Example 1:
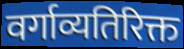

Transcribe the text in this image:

वर्गाव्यतिरिक्त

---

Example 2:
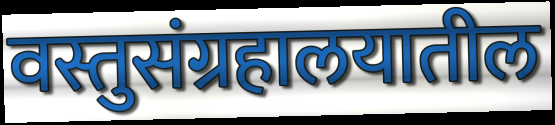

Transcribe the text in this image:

वस्तुसंग्रहालयातील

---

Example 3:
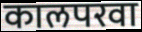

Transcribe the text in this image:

कालपरवा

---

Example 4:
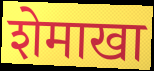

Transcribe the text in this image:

शेमाखा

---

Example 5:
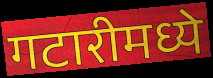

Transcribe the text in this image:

गटारीमध्ये